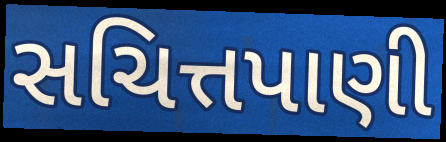
સચિત્તપાણી